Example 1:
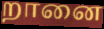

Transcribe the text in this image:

றானை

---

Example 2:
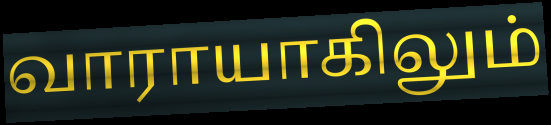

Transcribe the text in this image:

வாராயாகிலும்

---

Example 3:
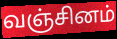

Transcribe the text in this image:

வஞ்சினம்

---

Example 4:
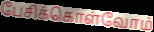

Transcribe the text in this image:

பேசிக்கொள்வோம்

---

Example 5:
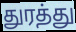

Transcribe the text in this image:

துரத்து